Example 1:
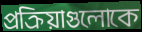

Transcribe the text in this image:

প্রক্রিয়াগুলোকে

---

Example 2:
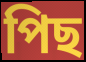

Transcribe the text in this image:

পিছ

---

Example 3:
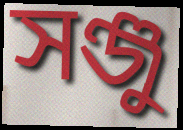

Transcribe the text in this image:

সঞ্জু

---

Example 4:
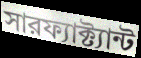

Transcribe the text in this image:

সারফ্যাক্ট্যান্ট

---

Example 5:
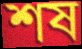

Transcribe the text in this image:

শষ